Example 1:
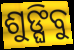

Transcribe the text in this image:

ଶୁଙ୍ଘିବୁ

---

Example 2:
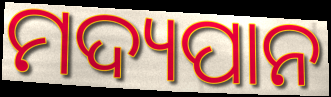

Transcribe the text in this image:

ମଦ୍ୟପାନ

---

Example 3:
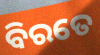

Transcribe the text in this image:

ବିରତେ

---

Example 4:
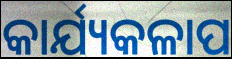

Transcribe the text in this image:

କାର୍ଯ୍ୟକଳାପ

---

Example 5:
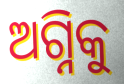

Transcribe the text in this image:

ଅଗ୍ନିକୁ